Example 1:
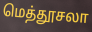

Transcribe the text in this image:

மெத்தூசலா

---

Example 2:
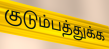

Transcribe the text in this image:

குடும்பத்துக்க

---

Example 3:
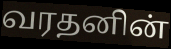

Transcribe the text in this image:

வரதனின்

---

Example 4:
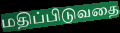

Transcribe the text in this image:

மதிப்பிடுவதை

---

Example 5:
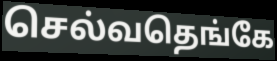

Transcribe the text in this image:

செல்வதெங்கே